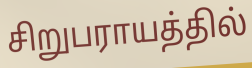
சிறுபராயத்தில்